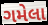
ગમેલા